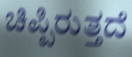
ಚಿಪ್ಪಿರುತ್ತದೆ